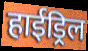
हाईड्रिल